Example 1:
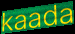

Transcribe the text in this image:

kaada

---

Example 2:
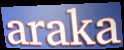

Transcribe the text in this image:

araka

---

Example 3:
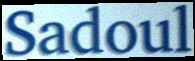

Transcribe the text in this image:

Sadoul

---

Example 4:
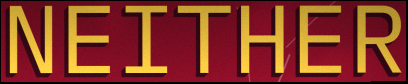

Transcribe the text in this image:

NEITHER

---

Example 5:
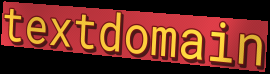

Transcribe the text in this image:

textdomain